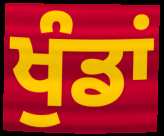
ਖੁੰਡਾਂ